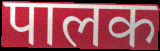
पालक